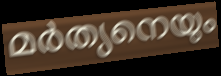
മർത്യനെയും